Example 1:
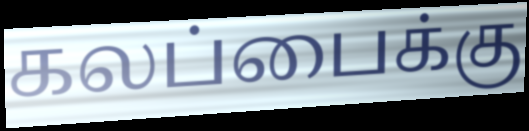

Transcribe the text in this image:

கலப்பைக்கு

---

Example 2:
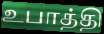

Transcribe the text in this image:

உபாத்தி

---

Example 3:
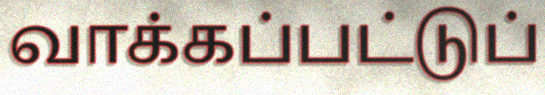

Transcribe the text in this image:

வாக்கப்பட்டுப்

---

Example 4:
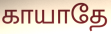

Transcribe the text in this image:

காயாதே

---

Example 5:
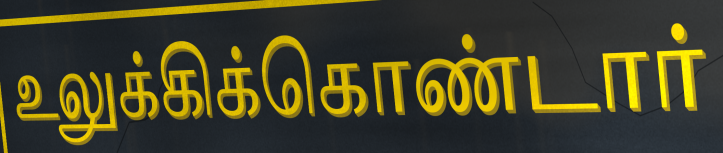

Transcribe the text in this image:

உலுக்கிக்கொண்டார்